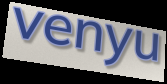
venyu